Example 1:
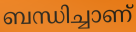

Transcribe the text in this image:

ബന്ധിച്ചാണ്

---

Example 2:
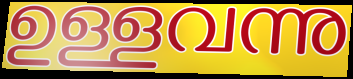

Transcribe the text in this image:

ഉള്ളവന്നു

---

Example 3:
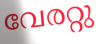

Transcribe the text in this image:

വേരറ്റു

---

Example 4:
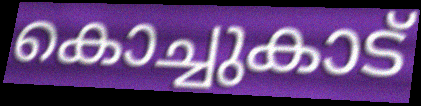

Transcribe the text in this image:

കൊച്ചുകാട്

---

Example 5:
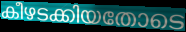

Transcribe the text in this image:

കീഴടക്കിയതോടെ